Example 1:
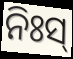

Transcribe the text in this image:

ନିଃସ୍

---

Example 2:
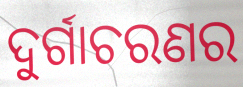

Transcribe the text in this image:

ଦୁର୍ଗାଚରଣର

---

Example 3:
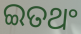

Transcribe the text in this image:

ଇତଥଂ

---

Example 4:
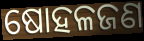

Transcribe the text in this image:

ଷୋହଳଜଣ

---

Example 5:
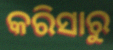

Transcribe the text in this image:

କରିସାରୁ